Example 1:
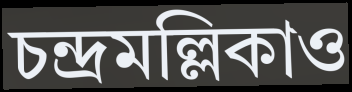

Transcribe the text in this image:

চন্দ্রমল্লিকাও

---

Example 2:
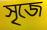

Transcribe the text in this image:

সৃজে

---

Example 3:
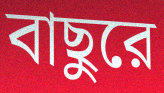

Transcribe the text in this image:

বাছুরে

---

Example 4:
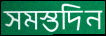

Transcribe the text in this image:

সমস্তদিন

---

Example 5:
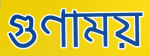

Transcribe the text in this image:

গুণাময়